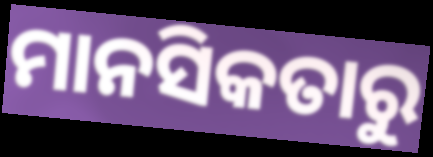
ମାନସିକତାରୁ